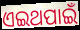
ଏଇଥପାଇଁ